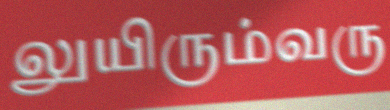
லுயிரும்வரு